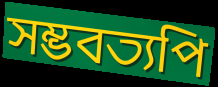
সম্ভবত্যপি